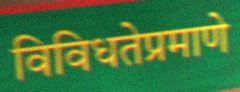
विविधतेप्रमाणे